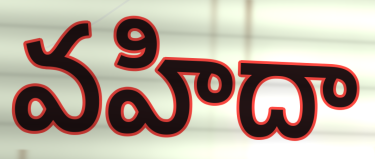
వహిదా